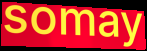
somay